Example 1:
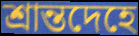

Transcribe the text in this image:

শ্রান্তদেহে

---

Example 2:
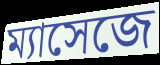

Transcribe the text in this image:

ম্যাসেজে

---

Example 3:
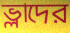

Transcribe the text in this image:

ভ্লাদের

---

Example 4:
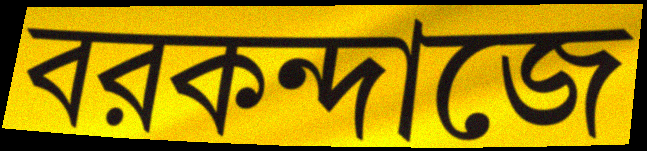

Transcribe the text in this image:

বরকন্দাজে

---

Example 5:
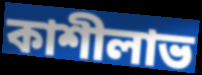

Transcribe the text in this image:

কাশীলাভ